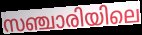
സഞ്ചാരിയിലെ